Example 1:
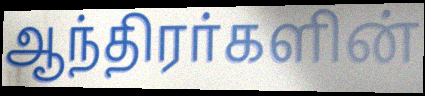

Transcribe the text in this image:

ஆந்திரர்களின்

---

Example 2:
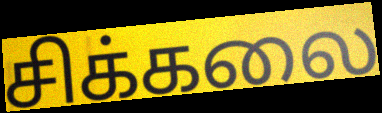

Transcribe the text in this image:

சிக்கலை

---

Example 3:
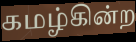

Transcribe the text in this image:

கமழ்கின்ற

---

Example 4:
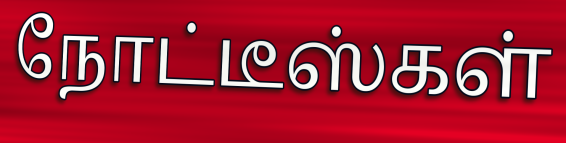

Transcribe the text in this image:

நோட்டீஸ்கள்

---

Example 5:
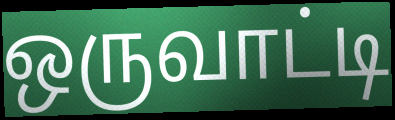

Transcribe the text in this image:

ஒருவாட்டி